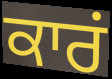
ਕਾਰਂ